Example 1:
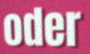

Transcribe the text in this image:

oder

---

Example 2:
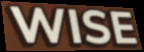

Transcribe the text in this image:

WISE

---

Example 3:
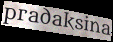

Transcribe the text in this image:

pradaksina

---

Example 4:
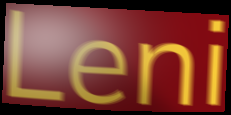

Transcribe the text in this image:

Leni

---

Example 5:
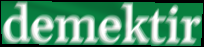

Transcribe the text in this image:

demektir